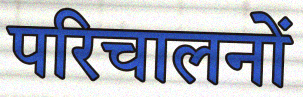
परिचालनों